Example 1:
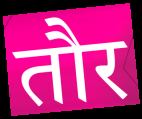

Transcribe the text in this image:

तौर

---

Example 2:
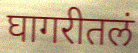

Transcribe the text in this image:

घागरीतलं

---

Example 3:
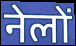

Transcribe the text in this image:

नेलों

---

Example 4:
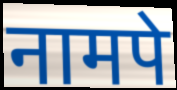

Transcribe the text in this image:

नामपे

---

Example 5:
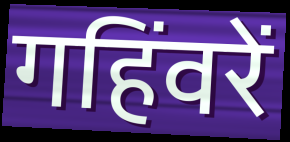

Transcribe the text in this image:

गहिंवरें